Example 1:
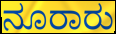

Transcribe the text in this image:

ನೂರಾರು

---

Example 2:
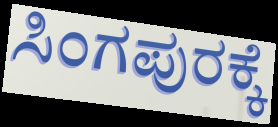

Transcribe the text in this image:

ಸಿಂಗಪುರಕ್ಕೆ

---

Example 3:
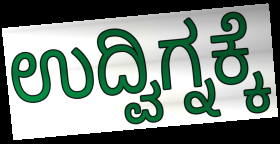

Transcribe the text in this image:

ಉದ್ವಿಗ್ನಕ್ಕೆ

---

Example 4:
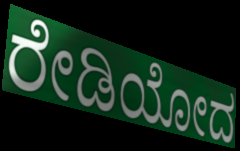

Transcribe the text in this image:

ರೇಡಿಯೋದ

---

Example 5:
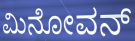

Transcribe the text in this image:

ಮಿನೋವನ್